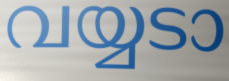
വയ്യടാ